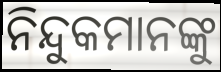
ନିନ୍ଦୁକମାନଙ୍କୁ